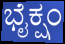
ಭೈಕ್ಷಂ